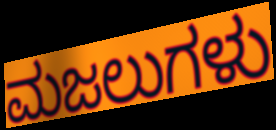
ಮಜಲುಗಳು